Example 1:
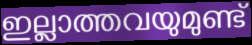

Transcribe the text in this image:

ഇല്ലാത്തവയുമുണ്ട്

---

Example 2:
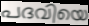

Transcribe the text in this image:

പദവിയെ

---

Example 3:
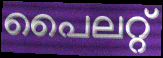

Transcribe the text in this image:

പൈലറ്റ്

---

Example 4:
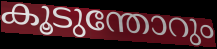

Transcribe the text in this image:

കൂടുന്തോറും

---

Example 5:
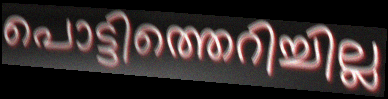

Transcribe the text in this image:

പൊട്ടിത്തെറിച്ചില്ല